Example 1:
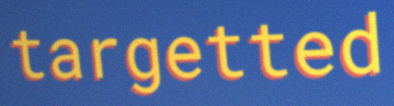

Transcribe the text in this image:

targetted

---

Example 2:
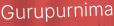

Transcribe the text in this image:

Gurupurnima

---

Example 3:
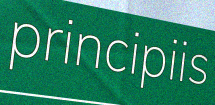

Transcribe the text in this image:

principiis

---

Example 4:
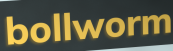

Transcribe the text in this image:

bollworm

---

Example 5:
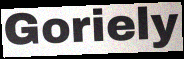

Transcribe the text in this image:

Goriely